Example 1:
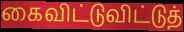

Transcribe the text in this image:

கைவிட்டுவிட்டுத்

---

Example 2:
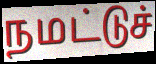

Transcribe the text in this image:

நமட்டுச்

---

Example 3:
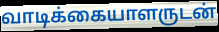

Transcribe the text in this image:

வாடிக்கையாளருடன்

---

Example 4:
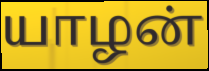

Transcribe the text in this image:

யாழன்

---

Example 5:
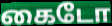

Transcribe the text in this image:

கைடோ